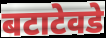
बटाटेवडे